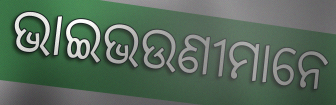
ଭାଇଭଉଣୀମାନେ